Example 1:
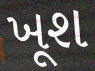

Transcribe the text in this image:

ખૂશ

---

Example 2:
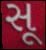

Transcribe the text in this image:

સૂ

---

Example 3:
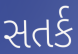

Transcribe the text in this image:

સતર્ક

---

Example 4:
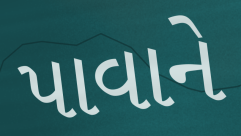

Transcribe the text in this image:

પાવાને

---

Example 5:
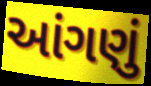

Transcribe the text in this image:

આંગણું